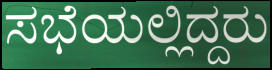
ಸಭೆಯಲ್ಲಿದ್ದರು